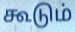
கூடும்